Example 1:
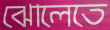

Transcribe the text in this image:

ঝোলেতে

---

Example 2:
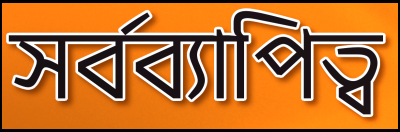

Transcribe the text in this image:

সর্বব্যাপিত্ব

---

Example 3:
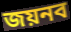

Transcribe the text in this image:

জয়নব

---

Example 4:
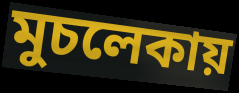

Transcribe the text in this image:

মুচলেকায়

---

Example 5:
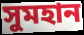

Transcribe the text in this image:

সুমহান